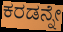
ಕರಡನ್ನೇ